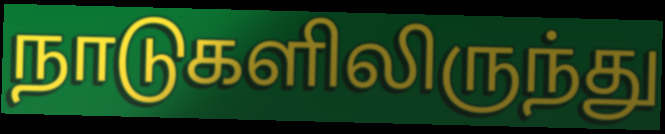
நாடுகளிலிருந்து